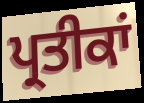
ਪ੍ਰਤੀਕਾਂ